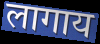
लागाय